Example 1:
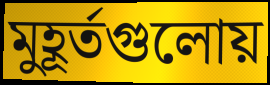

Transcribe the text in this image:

মুহূর্তগুলোয়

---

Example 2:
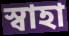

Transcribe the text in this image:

স্বাহা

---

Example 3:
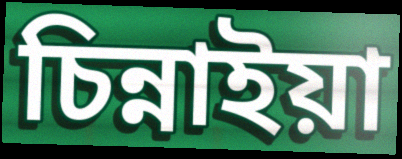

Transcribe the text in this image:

চিন্নাইয়া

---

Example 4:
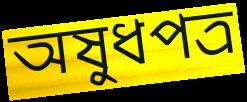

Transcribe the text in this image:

অষুধপত্র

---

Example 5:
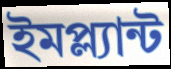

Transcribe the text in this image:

ইমপ্ল্যান্ট